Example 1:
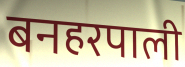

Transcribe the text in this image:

बनहरपाली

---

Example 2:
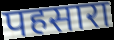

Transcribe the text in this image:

पहसारा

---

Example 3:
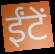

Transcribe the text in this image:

ईंटें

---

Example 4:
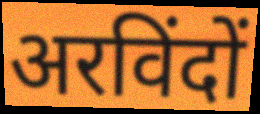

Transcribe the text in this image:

अरविंदों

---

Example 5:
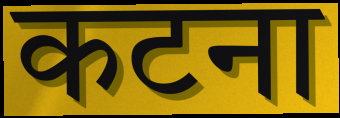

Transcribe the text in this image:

कटना